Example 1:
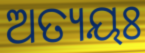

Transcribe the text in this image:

ଅତ୍ୟୟଃ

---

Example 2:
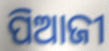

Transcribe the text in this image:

ପିଆଜୀ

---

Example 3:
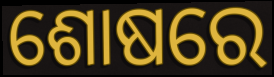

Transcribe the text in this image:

ଶୋଷରେ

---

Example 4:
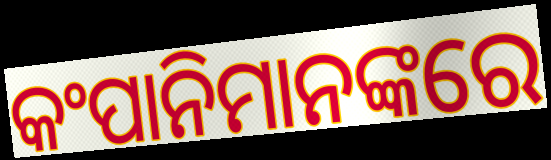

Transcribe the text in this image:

କଂପାନିମାନଙ୍କରେ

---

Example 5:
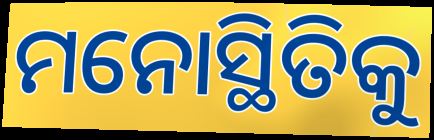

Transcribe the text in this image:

ମନୋସ୍ଥିତିକୁ